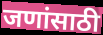
जणांसाठी